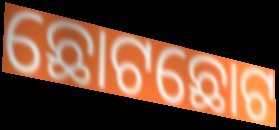
ଛୋଟଛୋଟ